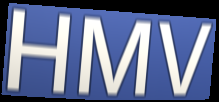
HMV